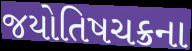
જયોતિષચક્રના